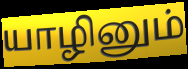
யாழினும்